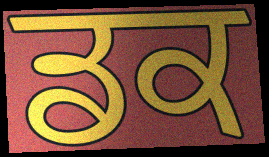
ਡਕ